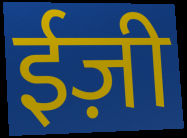
ईज़ी